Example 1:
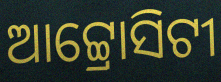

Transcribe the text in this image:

ଆଟ୍ଟ୍ରୋସିଟୀ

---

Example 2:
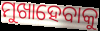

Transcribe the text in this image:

ମୁଖାହେବାକୁ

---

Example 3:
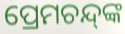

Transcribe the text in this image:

ପ୍ରେମଚନ୍ଦ୍‌ଙ୍କ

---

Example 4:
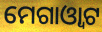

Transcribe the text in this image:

ମେଗାଓ୍ୱାଟ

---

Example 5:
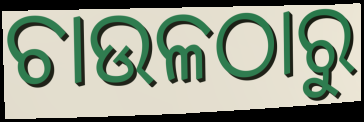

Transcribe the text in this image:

ଚାଉଳଠାରୁ